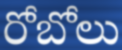
రోబోలు